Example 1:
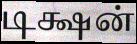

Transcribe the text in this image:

டிக்ஷன்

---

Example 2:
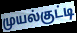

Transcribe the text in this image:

முயல்குட்டி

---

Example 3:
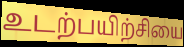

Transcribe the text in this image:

உடற்பயிற்சியை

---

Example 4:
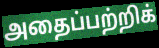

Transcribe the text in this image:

அதைப்பற்றிக்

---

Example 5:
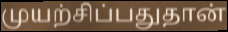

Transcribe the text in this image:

முயற்சிப்பதுதான்